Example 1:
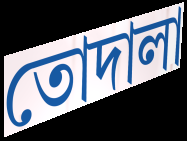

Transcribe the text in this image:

তোদালা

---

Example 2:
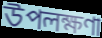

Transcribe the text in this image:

উপলক্ষণা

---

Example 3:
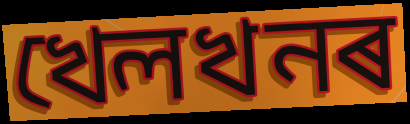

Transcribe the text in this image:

খেলখনৰ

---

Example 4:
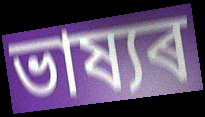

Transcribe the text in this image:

ভাষ্যৰ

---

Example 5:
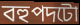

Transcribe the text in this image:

বহুপদটো